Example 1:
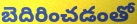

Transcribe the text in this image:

బెదిరించడంతో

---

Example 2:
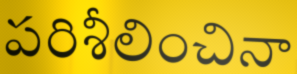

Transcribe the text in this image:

పరిశీలించినా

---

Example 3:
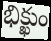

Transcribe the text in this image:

భిక్ఖుం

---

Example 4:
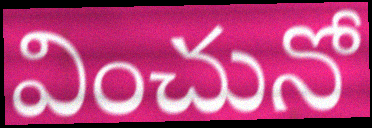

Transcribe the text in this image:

వించునో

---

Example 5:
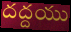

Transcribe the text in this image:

దద్దయు